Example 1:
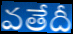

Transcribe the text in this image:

వతేదీ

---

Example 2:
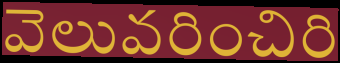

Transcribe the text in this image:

వెలువరించిరి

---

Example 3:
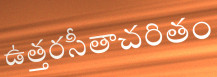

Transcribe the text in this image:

ఉత్తరసీతాచరితం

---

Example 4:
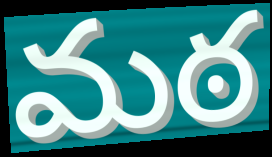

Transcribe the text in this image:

మఠ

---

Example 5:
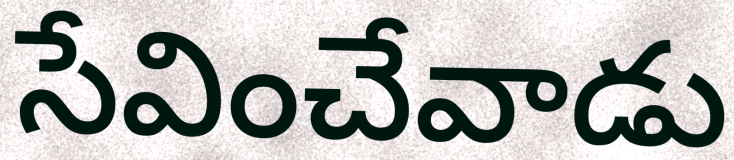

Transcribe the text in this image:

సేవించేవాడు